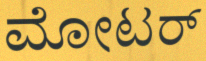
ಮೋಟರ್